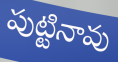
పుట్టినావు